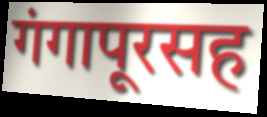
गंगापूरसह